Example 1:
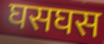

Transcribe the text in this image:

घसघस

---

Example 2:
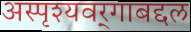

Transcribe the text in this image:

अस्पृश्यवर्गाबद्दल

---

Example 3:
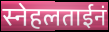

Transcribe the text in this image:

स्नेहलताईनं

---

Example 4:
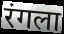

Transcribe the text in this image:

रंगला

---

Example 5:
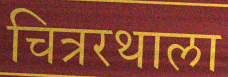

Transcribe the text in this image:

चित्ररथाला